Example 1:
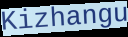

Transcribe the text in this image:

Kizhangu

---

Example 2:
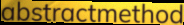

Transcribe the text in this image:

abstractmethod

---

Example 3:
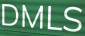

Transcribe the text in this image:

DMLS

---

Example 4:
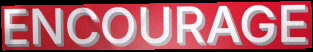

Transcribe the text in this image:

ENCOURAGE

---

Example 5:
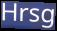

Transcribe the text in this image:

Hrsg